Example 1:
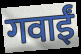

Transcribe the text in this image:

गवाईं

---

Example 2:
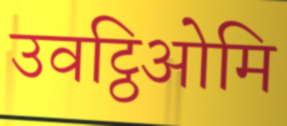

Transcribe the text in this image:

उवट्ठिओमि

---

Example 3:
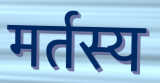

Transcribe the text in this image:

मर्तस्य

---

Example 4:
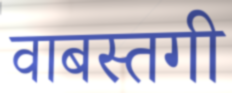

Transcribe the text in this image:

वाबस्तगी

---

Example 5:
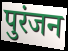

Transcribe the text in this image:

पुरंजन